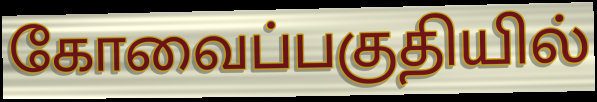
கோவைப்பகுதியில்